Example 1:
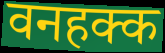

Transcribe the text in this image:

वनहक्क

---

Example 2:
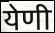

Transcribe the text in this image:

येणी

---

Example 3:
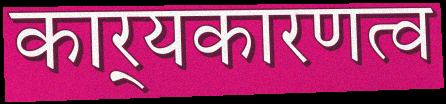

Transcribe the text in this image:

कार्यकारणत्व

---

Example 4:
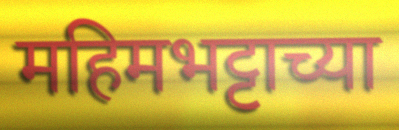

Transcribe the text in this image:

महिमभट्टाच्या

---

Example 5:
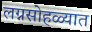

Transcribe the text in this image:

लग्नसोहळ्यात